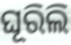
ଘୂରିଲି